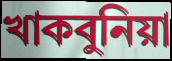
খাকবুনিয়া